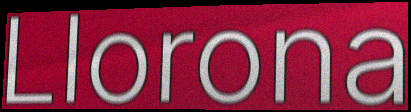
Llorona